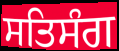
ਸਤਿਸੰਗ